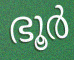
ഭൂർ